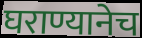
घराण्यानेच